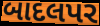
બાદલપર